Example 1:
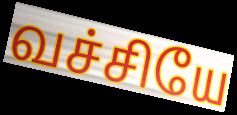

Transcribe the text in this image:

வச்சியே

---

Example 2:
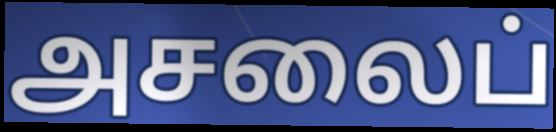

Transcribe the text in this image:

அசலைப்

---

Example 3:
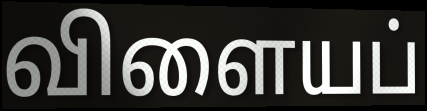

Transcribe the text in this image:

விளையப்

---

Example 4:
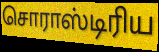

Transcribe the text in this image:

சொராஸ்டிரிய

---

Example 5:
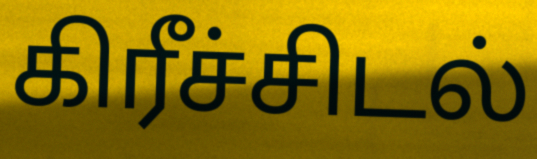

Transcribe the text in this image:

கிரீச்சிடல்